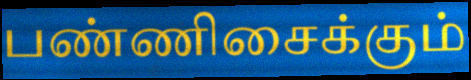
பண்ணிசைக்கும்